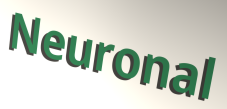
Neuronal